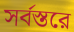
সর্বস্তরে